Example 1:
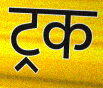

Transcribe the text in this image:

ट्रक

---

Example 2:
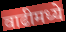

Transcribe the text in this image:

वाढीमध्ये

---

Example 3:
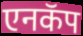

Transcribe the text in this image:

एनकॅप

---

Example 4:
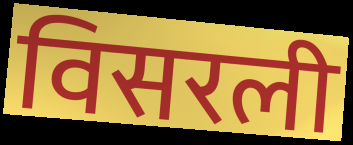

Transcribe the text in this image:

विसरली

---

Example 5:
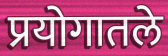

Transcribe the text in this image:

प्रयोगातले